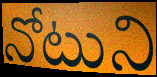
నోటుని